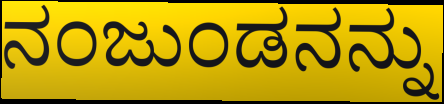
ನಂಜುಂಡನನ್ನು